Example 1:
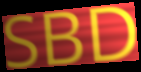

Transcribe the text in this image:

SBD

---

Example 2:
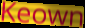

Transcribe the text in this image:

Keown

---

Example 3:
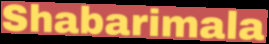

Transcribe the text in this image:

Shabarimala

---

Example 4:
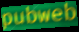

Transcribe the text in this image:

pubweb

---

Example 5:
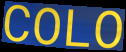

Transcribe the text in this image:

COLO